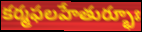
కర్మఫలహేతుర్భూః